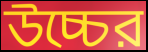
উচ্চের